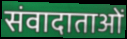
संवादाताओं